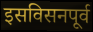
इसविसनपूर्व